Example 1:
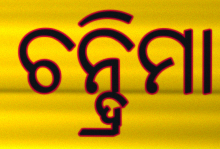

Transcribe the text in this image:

ଚନ୍ଦ୍ରିମା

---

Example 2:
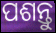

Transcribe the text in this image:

ପଶନ୍ତୁ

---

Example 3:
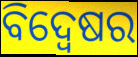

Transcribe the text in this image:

ବିଦ୍ୱେଷର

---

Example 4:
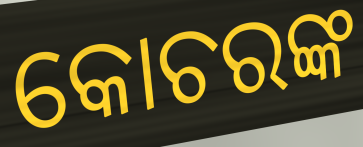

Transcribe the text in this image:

କୋଚରଙ୍କ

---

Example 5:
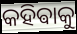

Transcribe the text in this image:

କହିଵାକୁ